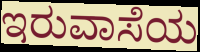
ಇರುವಾಸೆಯ